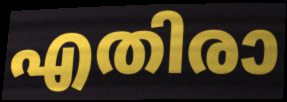
എതിരാ